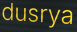
dusrya